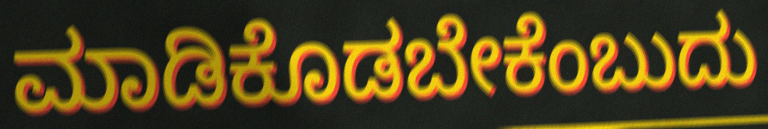
ಮಾಡಿಕೊಡಬೇಕೆಂಬುದು